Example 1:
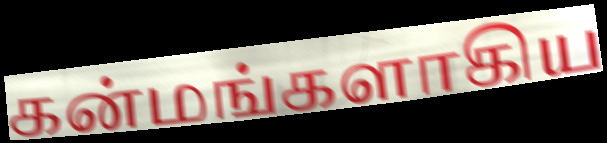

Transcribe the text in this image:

கன்மங்களாகிய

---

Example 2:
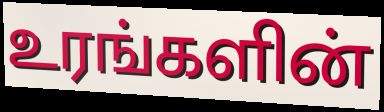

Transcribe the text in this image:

உரங்களின்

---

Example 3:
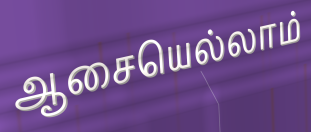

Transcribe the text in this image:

ஆசையெல்லாம்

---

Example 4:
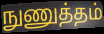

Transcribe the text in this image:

நுணுத்தம்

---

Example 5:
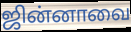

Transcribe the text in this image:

ஜின்னாவை